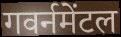
गवर्नमेंटल